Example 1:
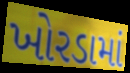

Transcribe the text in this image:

ખોરડામાં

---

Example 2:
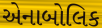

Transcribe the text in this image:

એનાબોલિક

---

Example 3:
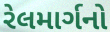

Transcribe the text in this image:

રેલમાર્ગનો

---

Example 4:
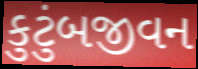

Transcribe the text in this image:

કુટુંબજીવન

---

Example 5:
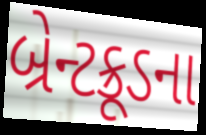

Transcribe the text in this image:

બ્રેન્ટક્રૂડના